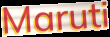
Maruti